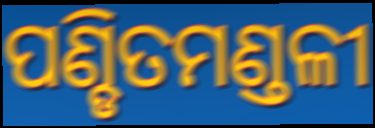
ପଣ୍ଡିତମଣ୍ଡଳୀ